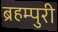
ब्रहम्पुरी